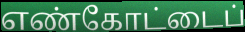
எண்கோட்டைப்